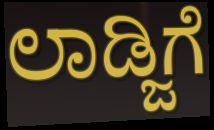
ಲಾಡ್ಜಿಗೆ